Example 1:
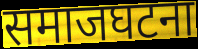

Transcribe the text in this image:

समाजघटना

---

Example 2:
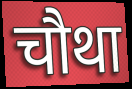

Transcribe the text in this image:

चौथा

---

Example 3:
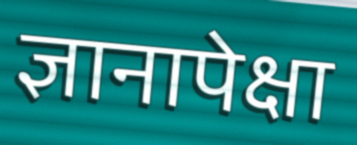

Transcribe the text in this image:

ज्ञानापेक्षा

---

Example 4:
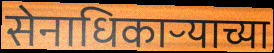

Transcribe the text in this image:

सेनाधिकाऱ्याच्या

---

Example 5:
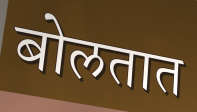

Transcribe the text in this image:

बोलतात